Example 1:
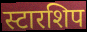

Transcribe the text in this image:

स्टारशिप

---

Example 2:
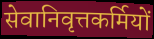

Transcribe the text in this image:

सेवानिवृत्तकर्मियों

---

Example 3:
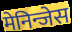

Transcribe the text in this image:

मेनिन्जेस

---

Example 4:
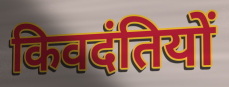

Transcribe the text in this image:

किवदंतियों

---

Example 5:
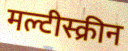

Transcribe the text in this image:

मल्टीस्क्रीन